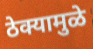
ठेक्यामुळे